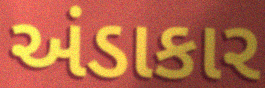
અંડાકાર